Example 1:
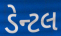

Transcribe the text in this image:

ડેન્ટલ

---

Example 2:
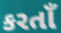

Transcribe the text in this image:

કરતાઁ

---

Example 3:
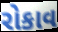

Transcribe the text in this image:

રોકાવ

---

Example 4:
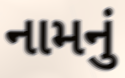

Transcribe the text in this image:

નામનું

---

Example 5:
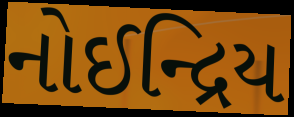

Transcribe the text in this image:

નોઈન્દ્રિય